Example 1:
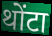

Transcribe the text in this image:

थोंटा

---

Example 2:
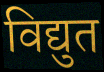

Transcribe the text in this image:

विद्युत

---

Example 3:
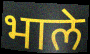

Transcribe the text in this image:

भाले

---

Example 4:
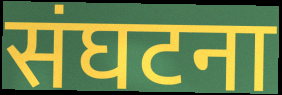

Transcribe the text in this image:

संघटना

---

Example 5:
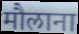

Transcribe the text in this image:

मौलाना